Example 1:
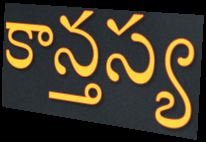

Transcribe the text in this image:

కాన్తస్య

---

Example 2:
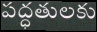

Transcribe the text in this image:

పద్ధతులకు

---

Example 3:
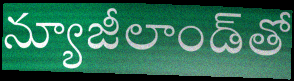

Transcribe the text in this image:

న్యూజీలాండ్‌తో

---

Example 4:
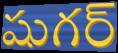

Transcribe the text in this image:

షుగర్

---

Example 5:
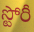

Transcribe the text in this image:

స్టోరీ